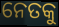
ନେତକୁ